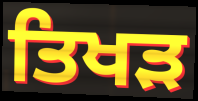
ਤਿਖੜ